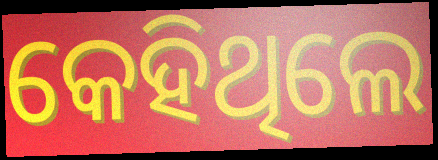
କେହିଥିଲେ